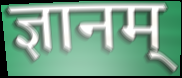
ज्ञानम्